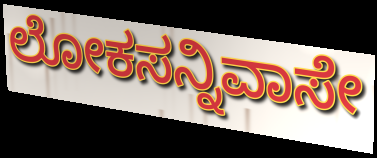
ಲೋಕಸನ್ನಿವಾಸೇ